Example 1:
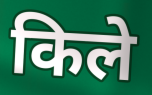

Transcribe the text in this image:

किले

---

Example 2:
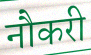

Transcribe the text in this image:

नौकरी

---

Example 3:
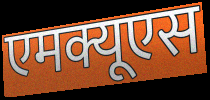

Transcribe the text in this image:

एमक्यूएस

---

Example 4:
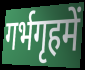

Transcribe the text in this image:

गर्भगृहमें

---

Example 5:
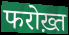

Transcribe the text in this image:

फरोख़्त